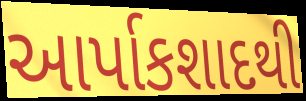
આર્પાકશાદથી